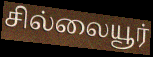
சில்லையூர்